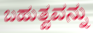
ಬಹುತ್ವವನ್ನು